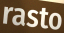
rasto